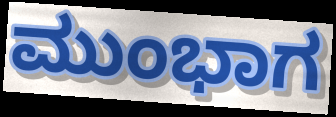
ಮುಂಭಾಗ